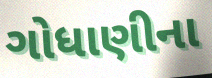
ગોધાણીના